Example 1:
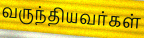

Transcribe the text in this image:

வருந்தியவர்கள்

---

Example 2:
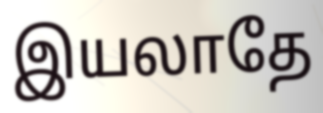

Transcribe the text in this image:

இயலாதே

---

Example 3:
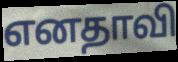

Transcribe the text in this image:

எனதாவி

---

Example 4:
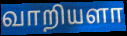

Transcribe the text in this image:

வாறியளா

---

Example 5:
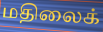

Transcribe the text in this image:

மதிலைக்